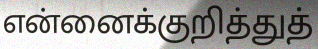
என்னைக்குறித்துத்